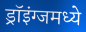
ड्रॉइंग्जमध्ये